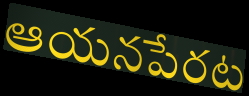
ఆయనపేరట